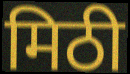
मिठी